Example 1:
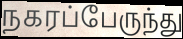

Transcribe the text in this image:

நகரப்பேருந்து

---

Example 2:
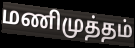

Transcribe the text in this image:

மணிமுத்தம்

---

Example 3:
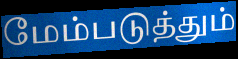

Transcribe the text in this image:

மேம்படுத்தும்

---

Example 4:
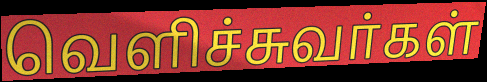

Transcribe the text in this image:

வெளிச்சுவர்கள்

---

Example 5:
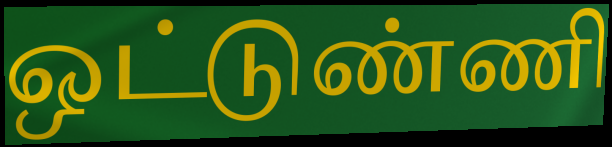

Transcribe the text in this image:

ஒட்டுண்ணி